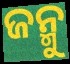
ଜନ୍ମୁ